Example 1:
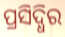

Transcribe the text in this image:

ପ୍ରସିଦ୍ଧିର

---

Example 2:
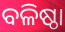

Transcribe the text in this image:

ବଳିଷ୍ଠା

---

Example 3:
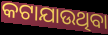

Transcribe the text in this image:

କଟାଯାଉଥିବା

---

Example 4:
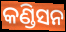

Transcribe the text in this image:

କଣ୍ଡିସନ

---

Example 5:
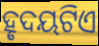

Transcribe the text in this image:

ହୃଦୟଟିଏ